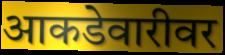
आकडेवारीवर